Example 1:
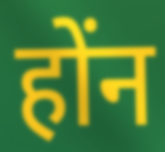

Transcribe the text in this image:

होंन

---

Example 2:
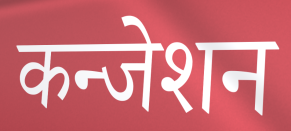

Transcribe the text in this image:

कन्जेशन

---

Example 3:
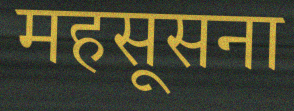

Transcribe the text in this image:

महसूसना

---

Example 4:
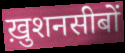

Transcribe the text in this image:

ख़ुशनसीबों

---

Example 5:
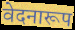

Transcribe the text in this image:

वेदनारूप